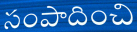
సంపాదించి